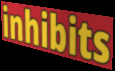
inhibits